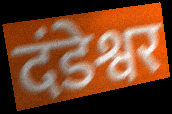
दंडेश्वर